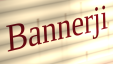
Bannerji